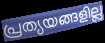
പ്രത്യയങ്ങളില്ല